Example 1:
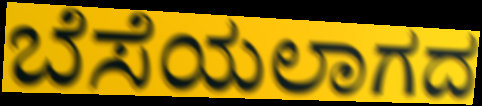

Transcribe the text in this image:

ಬೆಸೆಯಲಾಗದ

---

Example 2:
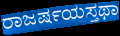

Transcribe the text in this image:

ರಾಜರ್ಷಯಸ್ತಥಾ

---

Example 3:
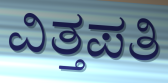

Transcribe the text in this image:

ವಿತ್ತಪತಿ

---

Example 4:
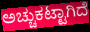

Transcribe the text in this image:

ಅಚ್ಚುಕಟ್ಟಾಗಿದೆ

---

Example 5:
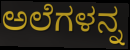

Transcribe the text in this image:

ಅಲೆಗಳನ್ನ